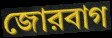
জোরবাগ